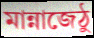
মান্নাজেঠু